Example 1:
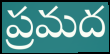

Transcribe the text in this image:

ప్రమద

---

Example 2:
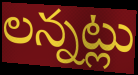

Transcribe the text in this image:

లన్నట్లు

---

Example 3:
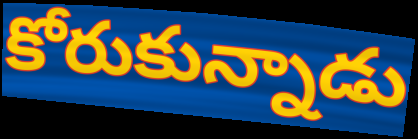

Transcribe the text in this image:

కోరుకున్నాడు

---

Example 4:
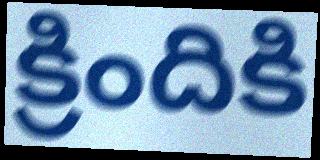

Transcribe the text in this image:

క్రిందికి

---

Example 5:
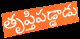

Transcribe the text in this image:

తృప్తిపడ్డాడు